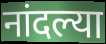
नांदल्या